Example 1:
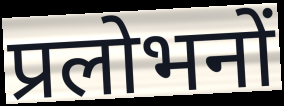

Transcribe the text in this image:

प्रलोभनों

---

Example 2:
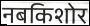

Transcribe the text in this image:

नबकिशोर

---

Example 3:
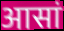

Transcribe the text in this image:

आसां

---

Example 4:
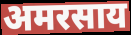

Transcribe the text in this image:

अमरसाय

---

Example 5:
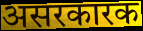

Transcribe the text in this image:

असरकारक